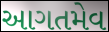
આગતમેવ